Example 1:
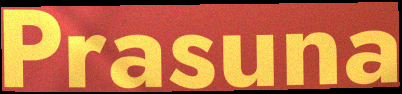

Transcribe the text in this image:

Prasuna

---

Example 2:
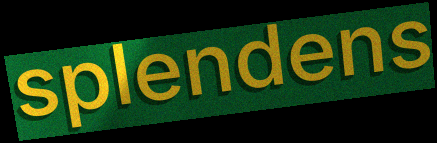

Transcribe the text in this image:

splendens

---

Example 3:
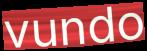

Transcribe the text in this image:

vundo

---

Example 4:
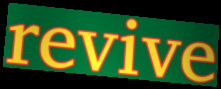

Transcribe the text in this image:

revive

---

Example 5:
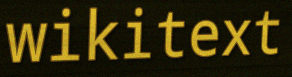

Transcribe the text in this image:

wikitext